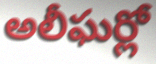
అలీఘర్లో